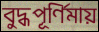
বুদ্ধপূর্ণিমায়